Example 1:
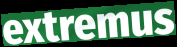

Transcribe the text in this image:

extremus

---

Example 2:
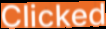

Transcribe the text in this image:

Clicked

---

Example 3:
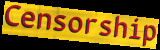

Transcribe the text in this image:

Censorship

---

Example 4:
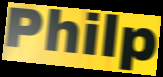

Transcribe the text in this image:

Philp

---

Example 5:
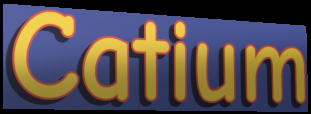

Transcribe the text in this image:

Catium